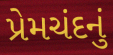
પ્રેમચંદનું